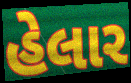
હેલાર